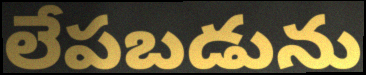
లేపబడును